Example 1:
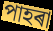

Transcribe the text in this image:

পাহৰা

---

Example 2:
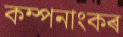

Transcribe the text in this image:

কম্পনাংকৰ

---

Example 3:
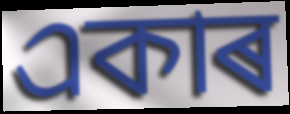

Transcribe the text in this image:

একাৰ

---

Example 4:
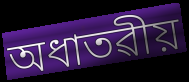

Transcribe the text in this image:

অধাতৱীয়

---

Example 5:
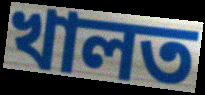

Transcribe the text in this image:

খালত